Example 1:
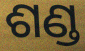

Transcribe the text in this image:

ଶଣ୍ଡ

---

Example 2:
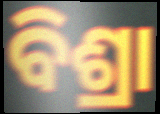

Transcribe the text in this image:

ବିଶ୍ରା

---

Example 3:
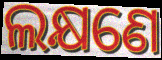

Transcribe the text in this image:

ଲକ୍ଷଣେ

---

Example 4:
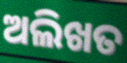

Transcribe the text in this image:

ଅଲିଖତ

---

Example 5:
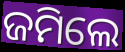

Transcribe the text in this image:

ଜମିଲେ